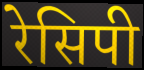
रेसिपी